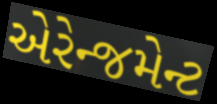
એરેન્જમેન્ટ